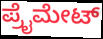
ಪ್ರೈಮೇಟ್